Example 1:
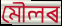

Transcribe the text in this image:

মৌলৰ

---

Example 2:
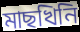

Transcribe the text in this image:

মাছখিনি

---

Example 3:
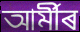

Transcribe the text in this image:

আৰ্মীৰ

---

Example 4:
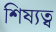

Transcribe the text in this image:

শিষ্যত্ব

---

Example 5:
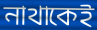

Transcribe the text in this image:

নাথাকেই